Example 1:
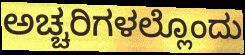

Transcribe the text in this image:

ಅಚ್ಚರಿಗಳಲ್ಲೊಂದು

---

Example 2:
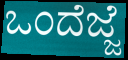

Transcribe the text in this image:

ಒಂದೆಜ್ಜೆ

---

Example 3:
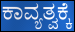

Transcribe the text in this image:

ಕಾವ್ಯತ್ವಕ್ಕೆ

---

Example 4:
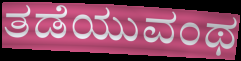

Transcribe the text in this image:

ತಡೆಯುವಂಥ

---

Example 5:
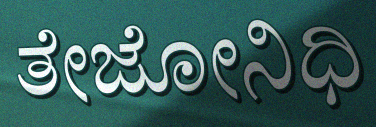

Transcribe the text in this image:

ತೇಜೋನಿಧಿ